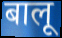
बालू